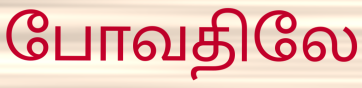
போவதிலே